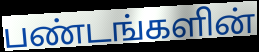
பண்டங்களின்